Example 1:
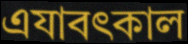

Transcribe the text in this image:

এযাবৎকাল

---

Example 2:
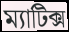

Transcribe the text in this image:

ম্যাটিক্স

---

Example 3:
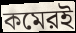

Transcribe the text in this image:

কমেরই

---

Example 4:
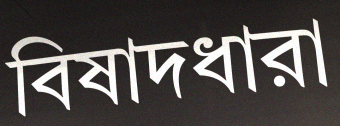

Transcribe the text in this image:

বিষাদধারা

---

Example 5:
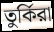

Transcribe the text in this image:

তুর্কিরা